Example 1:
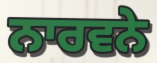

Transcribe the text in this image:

ਨਾਰਵਨੇ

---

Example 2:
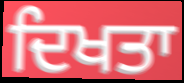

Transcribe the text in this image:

ਦਿਖਤਾ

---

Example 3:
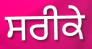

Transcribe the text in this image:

ਸਰੀਕੇ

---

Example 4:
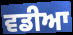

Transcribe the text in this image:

ਵਡੀਆ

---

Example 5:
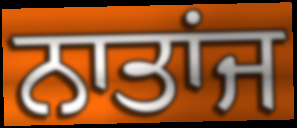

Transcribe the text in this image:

ਨਾਤਾਂਜ